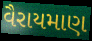
વૈરાયમાણ